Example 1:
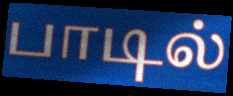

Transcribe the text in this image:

பாடில்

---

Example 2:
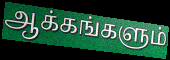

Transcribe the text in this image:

ஆக்கங்களும்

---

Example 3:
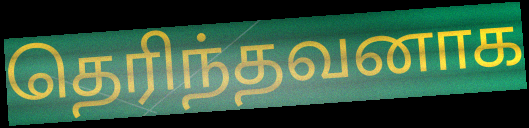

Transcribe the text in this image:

தெரிந்தவனாக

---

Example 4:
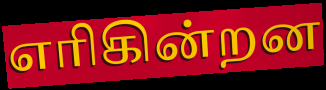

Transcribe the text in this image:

எரிகின்றன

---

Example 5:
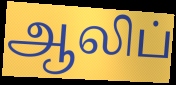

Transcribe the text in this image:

ஆலிப்